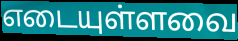
எடையுள்ளவை